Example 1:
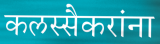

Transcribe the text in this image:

कलस्सैकरांना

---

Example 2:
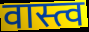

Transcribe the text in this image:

वास्त्व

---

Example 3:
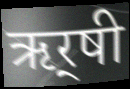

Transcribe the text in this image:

ऋर्षी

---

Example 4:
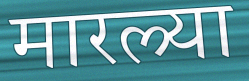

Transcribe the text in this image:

मारल्या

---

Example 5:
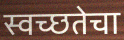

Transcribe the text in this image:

स्वच्छतेचा